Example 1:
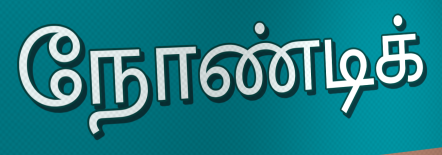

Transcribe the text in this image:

நோண்டிக்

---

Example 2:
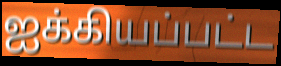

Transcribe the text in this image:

ஐக்கியப்பட்ட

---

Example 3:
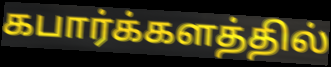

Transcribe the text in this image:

கபார்க்களத்தில்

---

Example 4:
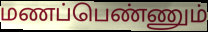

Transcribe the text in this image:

மணப்பெண்ணும்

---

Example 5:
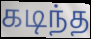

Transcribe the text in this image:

கடிந்த